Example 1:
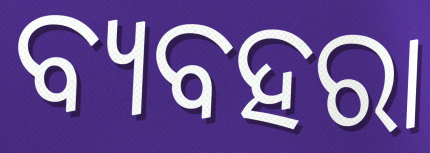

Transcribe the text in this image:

ବ୍ୟବହରା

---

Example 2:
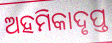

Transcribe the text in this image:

ଅହମିକାଦୃପ୍ତ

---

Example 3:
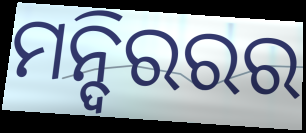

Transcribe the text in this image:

ମନ୍ଦିରରର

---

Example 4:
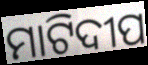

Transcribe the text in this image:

ମାଟିଦୀପ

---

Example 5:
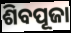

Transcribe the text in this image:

ଶିବପୂଜା